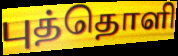
புத்தொளி